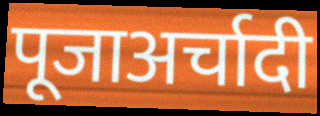
पूजाअर्चादी